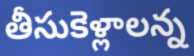
తీసుకెళ్లాలన్న